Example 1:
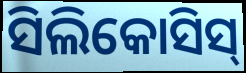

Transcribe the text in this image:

ସିଲିକୋସିସ୍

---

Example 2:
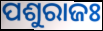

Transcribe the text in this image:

ପଶୁରାଜଃ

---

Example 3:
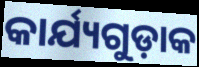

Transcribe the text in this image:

କାର୍ଯ୍ୟଗୁଡ଼ାକ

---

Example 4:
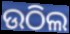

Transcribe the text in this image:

ଉଠିଲ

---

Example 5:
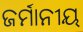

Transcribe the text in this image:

ଜର୍ମାନୀୟ